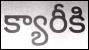
క్యారీకి